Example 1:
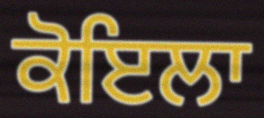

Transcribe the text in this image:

ਕੋਇਲਾ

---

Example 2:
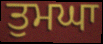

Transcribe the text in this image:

ਤੁਮਘਾ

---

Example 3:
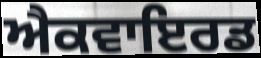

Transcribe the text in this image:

ਐਕਵਾਇਰਡ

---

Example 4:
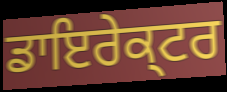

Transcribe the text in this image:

ਡਾਇਰੇਕ੍ਟਰ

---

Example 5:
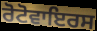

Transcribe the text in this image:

ਰੋਟੋਵਾਇਰਸ